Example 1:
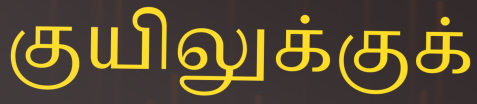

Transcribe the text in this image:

குயிலுக்குக்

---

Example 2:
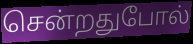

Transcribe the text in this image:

சென்றதுபோல்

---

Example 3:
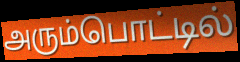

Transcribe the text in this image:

அரும்பொட்டில்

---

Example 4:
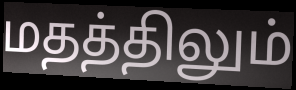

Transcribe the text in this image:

மதத்திலும்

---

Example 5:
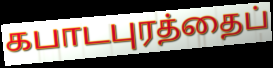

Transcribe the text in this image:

கபாடபுரத்தைப்